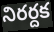
నిరర్దక